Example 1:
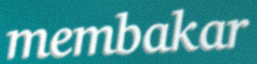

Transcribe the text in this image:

membakar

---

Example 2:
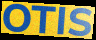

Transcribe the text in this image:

OTIS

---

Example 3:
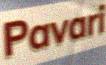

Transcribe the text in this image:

Pavari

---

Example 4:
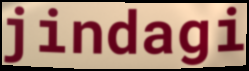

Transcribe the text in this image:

jindagi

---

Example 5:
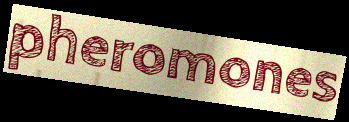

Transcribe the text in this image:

pheromones